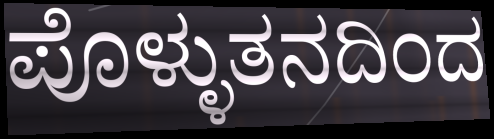
ಪೊಳ್ಳುತನದಿಂದ